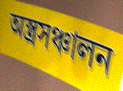
অস্ত্রসঞ্চালন